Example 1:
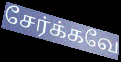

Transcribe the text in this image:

சேர்க்கவே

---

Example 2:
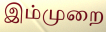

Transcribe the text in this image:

இம்முறை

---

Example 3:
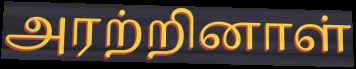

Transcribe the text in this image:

அரற்றினாள்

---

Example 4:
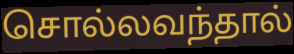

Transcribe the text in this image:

சொல்லவந்தால்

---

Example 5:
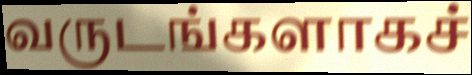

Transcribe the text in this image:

வருடங்களாகச்